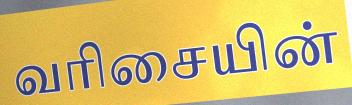
வரிசையின்